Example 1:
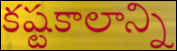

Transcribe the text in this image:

కష్టకాలాన్ని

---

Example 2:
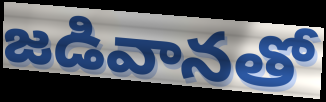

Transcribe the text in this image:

జడివానతో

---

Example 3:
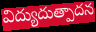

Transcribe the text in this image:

విద్యుదుత్పాదన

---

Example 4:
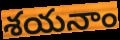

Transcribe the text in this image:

శయనాం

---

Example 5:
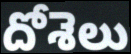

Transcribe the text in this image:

దోశెలు